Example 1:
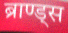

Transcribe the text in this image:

ब्राण्‍ड्स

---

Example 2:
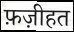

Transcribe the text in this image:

फ़ज़ीहत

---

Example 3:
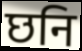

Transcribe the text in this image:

छनि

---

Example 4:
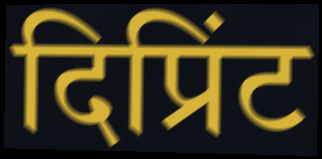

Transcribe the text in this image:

दिप्रिंट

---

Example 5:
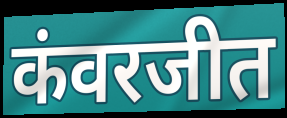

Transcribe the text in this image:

कंवरजीत